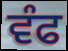
ਵੰਫ